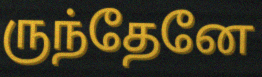
ருந்தேனே